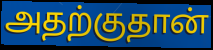
அதற்குதான்